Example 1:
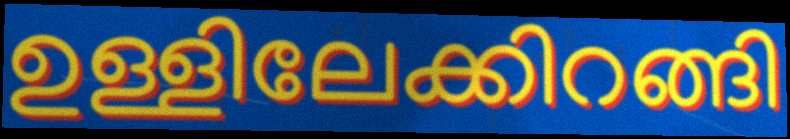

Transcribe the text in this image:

ഉള്ളിലേക്കിറങ്ങി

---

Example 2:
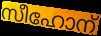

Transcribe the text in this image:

സീഹോന്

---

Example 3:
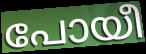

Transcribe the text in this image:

പോയീ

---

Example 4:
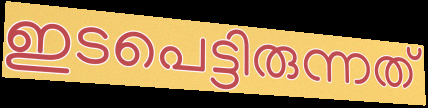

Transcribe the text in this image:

ഇടപെട്ടിരുന്നത്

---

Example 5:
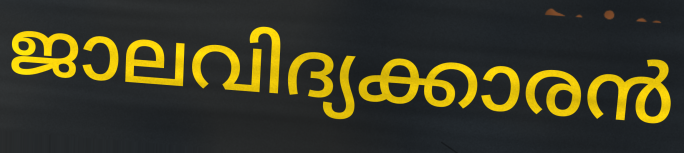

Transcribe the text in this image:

ജാലവിദ്യക്കാരൻ